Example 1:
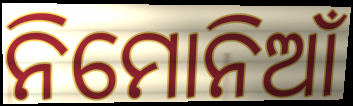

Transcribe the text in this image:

ନିମୋନିଆଁ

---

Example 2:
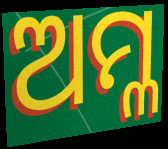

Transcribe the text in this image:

ଅମ୍ଳ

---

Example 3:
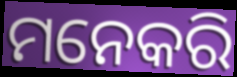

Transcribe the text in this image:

ମନେକରି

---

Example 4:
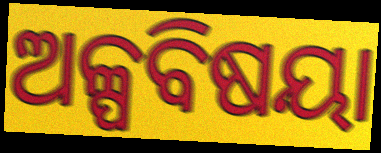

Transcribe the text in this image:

ଅଳ୍ପବିଷୟା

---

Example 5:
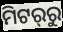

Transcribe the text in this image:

ମିଟର୍‍ରୁ